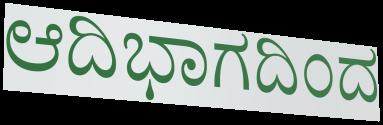
ಆದಿಭಾಗದಿಂದ